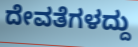
ದೇವತೆಗಳದ್ದು